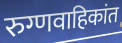
रुग्णवाहिकांत